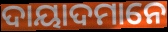
ଦାୟାଦମାନେ